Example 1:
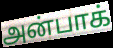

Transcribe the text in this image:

அன்பாக்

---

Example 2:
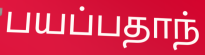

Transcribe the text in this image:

பயப்பதாந்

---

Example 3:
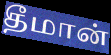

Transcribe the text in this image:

தீமான்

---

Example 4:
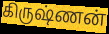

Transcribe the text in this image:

கிருஷ்ணன்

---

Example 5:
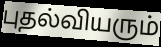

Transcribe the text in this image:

புதல்வியரும்